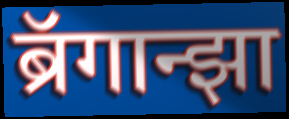
ब्रॅगान्झा